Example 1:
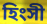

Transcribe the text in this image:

হিংসী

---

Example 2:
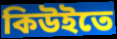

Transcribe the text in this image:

কিউইতে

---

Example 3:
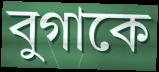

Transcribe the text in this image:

বুগাকে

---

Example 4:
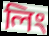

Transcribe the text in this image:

লিং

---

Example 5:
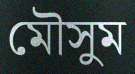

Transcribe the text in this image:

মৌসুম